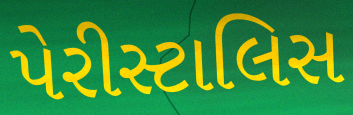
પેરીસ્ટાલિસ